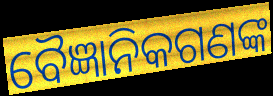
ବୈଜ୍ଞାନିକଗଣଙ୍କ